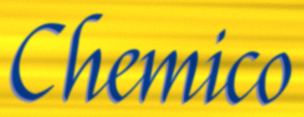
Chemico